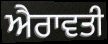
ਐਰਾਵਤੀ